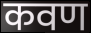
कवण